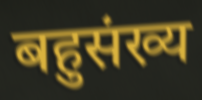
बहुसंख्य